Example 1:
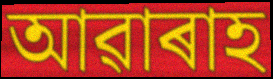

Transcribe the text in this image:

আৱাৰাহ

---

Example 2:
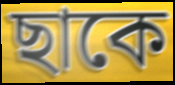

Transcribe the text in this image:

ছাকে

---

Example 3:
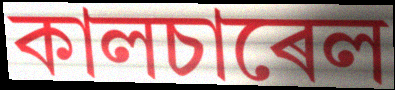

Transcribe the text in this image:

কালচাৰেল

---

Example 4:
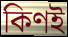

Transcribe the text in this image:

কিণই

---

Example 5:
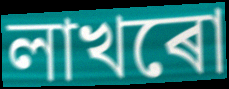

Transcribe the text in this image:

লাখৰো